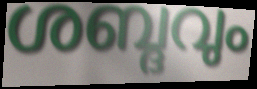
ശബ്ദവും